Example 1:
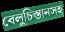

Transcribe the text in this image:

বেলুচিস্তানসহ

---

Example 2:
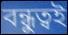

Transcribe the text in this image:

বন্ধুত্বই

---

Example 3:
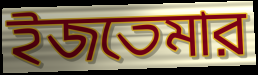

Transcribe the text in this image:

ইজতেমার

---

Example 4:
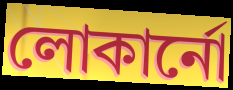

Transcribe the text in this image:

লোকার্নো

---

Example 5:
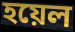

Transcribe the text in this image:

হয়েল